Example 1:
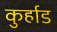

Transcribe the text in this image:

कुर्हाड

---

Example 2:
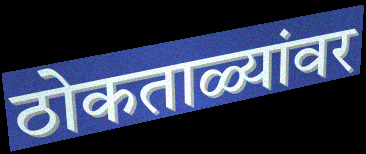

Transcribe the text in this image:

ठोकताळ्यांवर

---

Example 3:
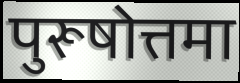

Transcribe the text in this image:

पुरूषोत्तमा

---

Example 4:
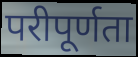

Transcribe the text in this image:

परीपूर्णता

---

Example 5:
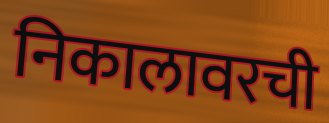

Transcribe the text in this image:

निकालावरची